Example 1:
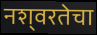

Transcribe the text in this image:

नश्वरतेचा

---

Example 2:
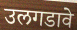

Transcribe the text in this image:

उलगडावे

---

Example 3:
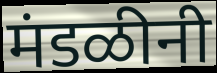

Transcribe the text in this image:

मंडळीनी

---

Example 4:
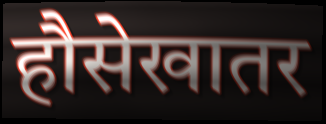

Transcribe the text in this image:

हौसेखातर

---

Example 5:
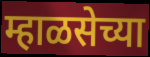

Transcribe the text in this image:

म्हाळसेच्या